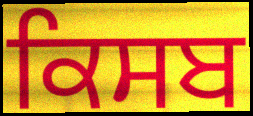
ਕਿਸਬ